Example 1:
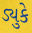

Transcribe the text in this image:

ડ્યુકે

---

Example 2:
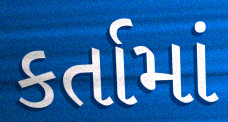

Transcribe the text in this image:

કર્તામાં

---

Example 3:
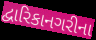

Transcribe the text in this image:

દ્વારિકાનગરીના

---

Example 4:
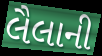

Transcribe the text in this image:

લૈલાની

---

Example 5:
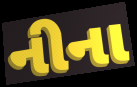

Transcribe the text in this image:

નીના